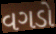
વગડો